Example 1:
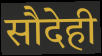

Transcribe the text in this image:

सौदेही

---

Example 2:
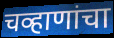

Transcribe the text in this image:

चव्हाणांचा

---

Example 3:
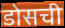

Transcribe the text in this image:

डोसची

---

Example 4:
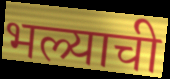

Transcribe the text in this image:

भल्याची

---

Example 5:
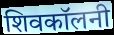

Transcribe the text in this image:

शिवकॉलनी